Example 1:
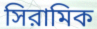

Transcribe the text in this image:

সিরামিক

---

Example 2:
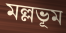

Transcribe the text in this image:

মল্লভূম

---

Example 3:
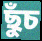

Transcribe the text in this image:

ছুঁচ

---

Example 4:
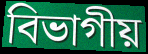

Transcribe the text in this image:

বিভাগীয়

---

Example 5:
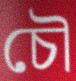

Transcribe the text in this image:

চৌ